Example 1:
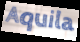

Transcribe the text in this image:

Aquila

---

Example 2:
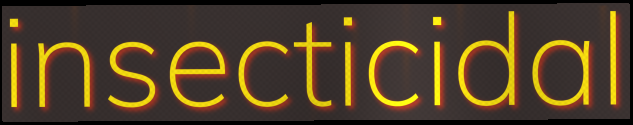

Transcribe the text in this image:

insecticidal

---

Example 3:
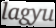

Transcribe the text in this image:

lagyu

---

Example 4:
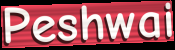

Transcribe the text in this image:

Peshwai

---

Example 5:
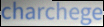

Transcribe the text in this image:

charchege